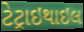
ટેટ્રાઇથાઇલ